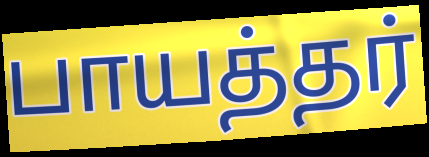
பாயத்தர்